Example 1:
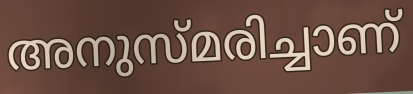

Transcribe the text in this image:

അനുസ്മരിച്ചാണ്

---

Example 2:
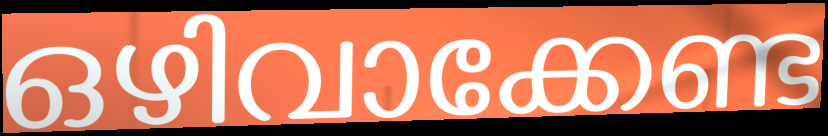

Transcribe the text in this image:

ഒഴിവാക്കേണ്ട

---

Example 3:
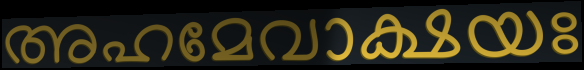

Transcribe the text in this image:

അഹമേവാക്ഷയഃ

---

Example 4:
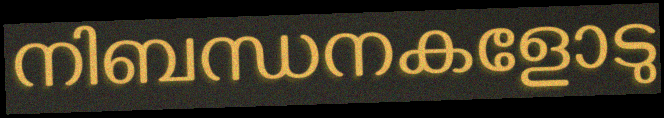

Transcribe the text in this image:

നിബന്ധനകളോടു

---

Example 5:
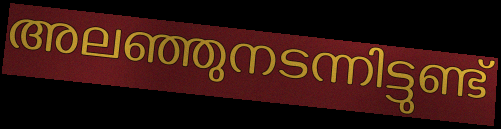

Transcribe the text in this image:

അലഞ്ഞുനടന്നിട്ടുണ്ട്